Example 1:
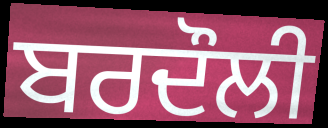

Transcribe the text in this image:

ਬਰਦੌਲੀ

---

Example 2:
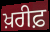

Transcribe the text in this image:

ਖ਼ਰੀਫ਼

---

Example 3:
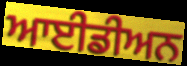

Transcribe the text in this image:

ਆਈਡੀਅਨ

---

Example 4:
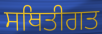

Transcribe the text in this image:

ਸਥਿਤੀਗਤ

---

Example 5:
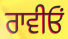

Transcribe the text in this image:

ਰਾਵੀਓਂ